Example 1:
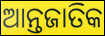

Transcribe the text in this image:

ଆନ୍ତଜାତିକ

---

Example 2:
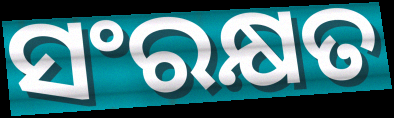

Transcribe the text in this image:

ସଂରକ୍ଷତ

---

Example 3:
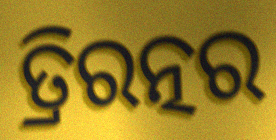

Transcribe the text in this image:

ତ୍ରିରତ୍ନର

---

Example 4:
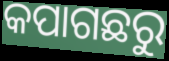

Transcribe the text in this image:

କପାଗଛରୁ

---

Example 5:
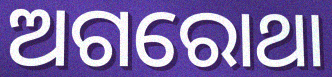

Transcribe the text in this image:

ଅଗରୋଥା